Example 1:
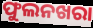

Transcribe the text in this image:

ଫୁଲନଖରା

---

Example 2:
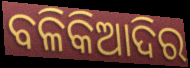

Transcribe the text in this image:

ବଳିକିଆଦିର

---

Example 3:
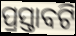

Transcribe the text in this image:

ପ୍ରସ୍ତାବଟି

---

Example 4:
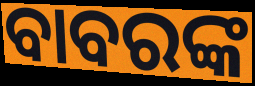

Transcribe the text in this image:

ବାବରଙ୍କ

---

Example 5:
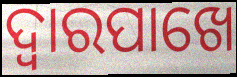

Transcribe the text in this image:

ଦ୍ୱାରପାଖେ